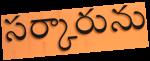
సర్కారును